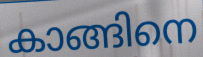
കാങ്ങിനെ